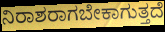
ನಿರಾಶರಾಗಬೇಕಾಗುತ್ತದೆ